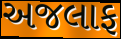
અજલાફ